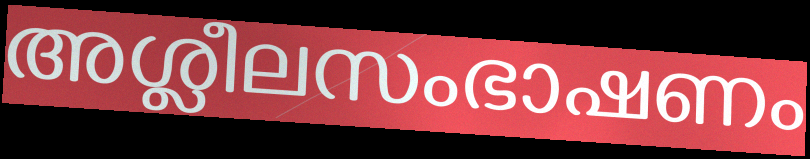
അശ്ലീലസംഭാഷണം